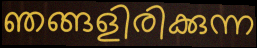
ഞങ്ങളിരിക്കുന്ന